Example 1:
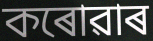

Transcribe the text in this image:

কৰোৱাৰ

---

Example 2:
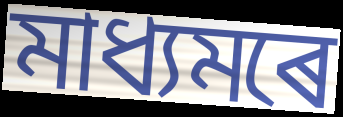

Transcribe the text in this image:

মাধ্যমৰে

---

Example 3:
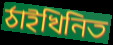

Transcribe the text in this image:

ঠাইখিনিত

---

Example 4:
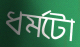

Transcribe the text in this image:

ধৰ্মটো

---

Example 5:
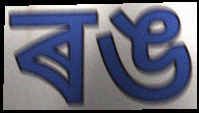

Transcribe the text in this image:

ৰঙ